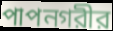
পাপনগরীর